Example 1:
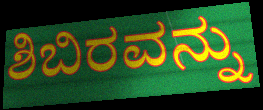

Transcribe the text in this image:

ಶಿಬಿರವನ್ನು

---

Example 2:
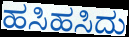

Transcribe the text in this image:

ಹಸಿಹಸಿದು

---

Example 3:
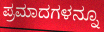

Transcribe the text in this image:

ಪ್ರಮಾದಗಳನ್ನೂ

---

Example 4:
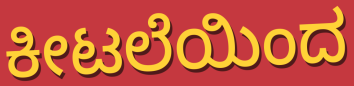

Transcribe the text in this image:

ಕೀಟಲೆಯಿಂದ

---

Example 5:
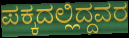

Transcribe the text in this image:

ಪಕ್ಕದಲ್ಲಿದ್ದವರ